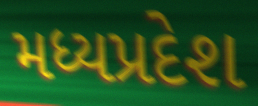
મધ્યપ્રદેશ